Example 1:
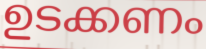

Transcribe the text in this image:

ഉടക്കണം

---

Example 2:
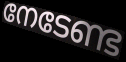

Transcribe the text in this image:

നേടേണ്ട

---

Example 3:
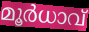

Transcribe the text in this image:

മൂർധാവ്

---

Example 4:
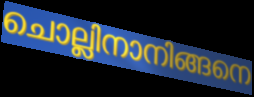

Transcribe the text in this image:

ചൊല്ലിനാനിങ്ങനെ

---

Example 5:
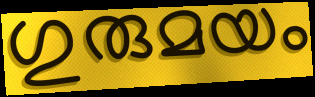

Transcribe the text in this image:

ഗുരുമയം